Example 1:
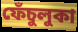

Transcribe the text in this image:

ফেঁচুলুকা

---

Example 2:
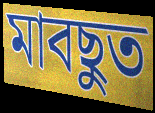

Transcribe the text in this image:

মাবছুত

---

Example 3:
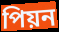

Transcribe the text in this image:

পিয়ন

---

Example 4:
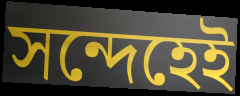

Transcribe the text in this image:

সন্দেহেই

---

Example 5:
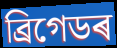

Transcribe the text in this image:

ব্ৰিগেডৰ